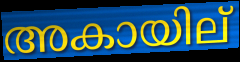
അകായില്